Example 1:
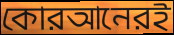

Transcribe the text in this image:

কোরআনেরই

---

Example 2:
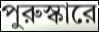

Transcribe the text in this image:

পুরুস্কারে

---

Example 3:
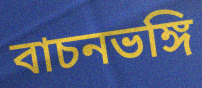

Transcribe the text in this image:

বাচনভঙ্গি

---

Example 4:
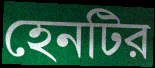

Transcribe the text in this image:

হেনটির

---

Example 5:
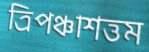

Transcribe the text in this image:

ত্রিপঞ্চাশত্তম